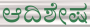
ಆದಿಶೇಷ